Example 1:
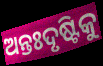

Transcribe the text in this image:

ଅନ୍ତଃଦୃଷ୍ଟିକୁ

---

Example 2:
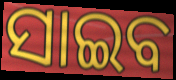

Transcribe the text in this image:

ସାଇବ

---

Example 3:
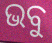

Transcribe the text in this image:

ଭବୁ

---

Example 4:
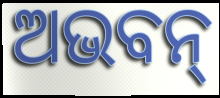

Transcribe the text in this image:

ଅଭବନ୍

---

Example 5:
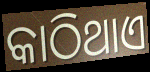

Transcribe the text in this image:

କାଠିଥାଏ